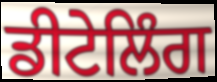
ਡੀਟੇਲਿੰਗ